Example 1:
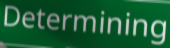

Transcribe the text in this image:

Determining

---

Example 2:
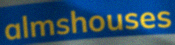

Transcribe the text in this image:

almshouses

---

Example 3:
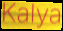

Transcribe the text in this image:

Kalya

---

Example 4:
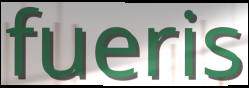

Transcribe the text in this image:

fueris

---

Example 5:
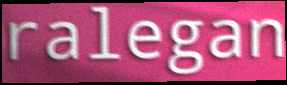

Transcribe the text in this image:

ralegan